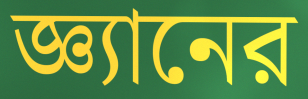
জ্ঞ্যানের